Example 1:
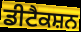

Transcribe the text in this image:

ਡੀਟੈਕਸ਼ਨ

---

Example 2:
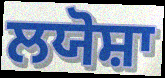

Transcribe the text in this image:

ਲਯੋਸ਼ਾ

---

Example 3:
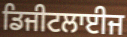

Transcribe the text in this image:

ਡਿਜੀਟਲਾਈਜ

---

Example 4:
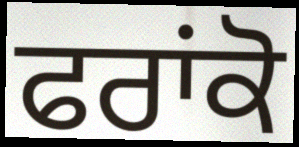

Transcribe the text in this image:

ਫਰਾਂਕੋ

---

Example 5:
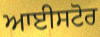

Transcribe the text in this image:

ਆਈਸਟੋਰ